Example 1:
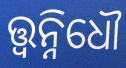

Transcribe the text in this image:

ତ୍ତ୍ଵନ୍ନିଧୌ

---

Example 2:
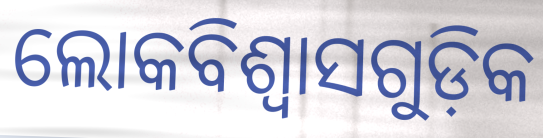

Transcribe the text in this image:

ଲୋକବିଶ୍ୱାସଗୁଡ଼ିକ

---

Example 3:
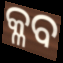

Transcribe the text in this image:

କ୍ଳବ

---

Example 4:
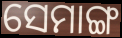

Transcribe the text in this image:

ସେମାଙ୍ଗ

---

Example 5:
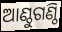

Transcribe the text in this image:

ଆଣ୍ଠୁଗଣ୍ଠି